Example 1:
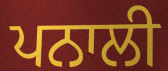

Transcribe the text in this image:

ਪਨਾਲੀ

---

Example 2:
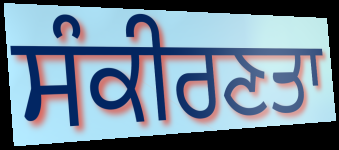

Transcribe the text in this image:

ਸੰਕੀਰਣਤਾ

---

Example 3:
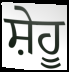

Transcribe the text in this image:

ਸ਼ੇਹੂ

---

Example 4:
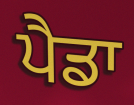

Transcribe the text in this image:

ਪੈਡਾ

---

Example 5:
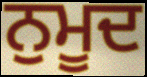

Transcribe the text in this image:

ਨੁਮੂਦ